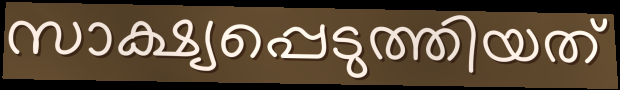
സാക്ഷ്യപ്പെടുത്തിയത്